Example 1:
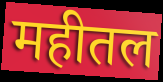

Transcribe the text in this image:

महीतल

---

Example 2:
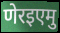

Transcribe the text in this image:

णेरइएमु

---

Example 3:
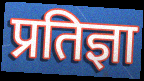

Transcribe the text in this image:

प्रतिज्ञा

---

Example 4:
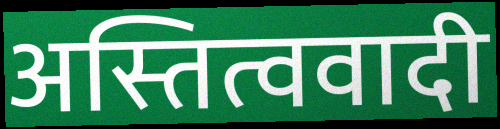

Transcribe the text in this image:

अस्तित्ववादी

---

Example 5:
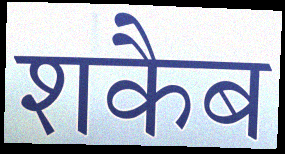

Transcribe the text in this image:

शकैब